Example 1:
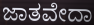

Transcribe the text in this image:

ಜಾತವೇದಾ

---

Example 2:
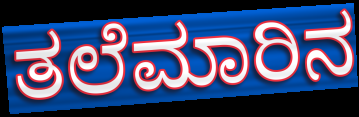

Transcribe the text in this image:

ತಲೆಮಾರಿನ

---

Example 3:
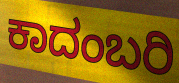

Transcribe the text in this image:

ಕಾದಂಬರಿ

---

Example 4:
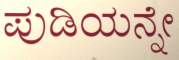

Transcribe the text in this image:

ಪುಡಿಯನ್ನೇ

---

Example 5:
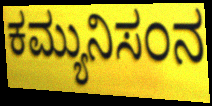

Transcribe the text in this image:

ಕಮ್ಯುನಿಸಂನ